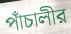
পাঁচালীর